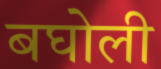
बघोली